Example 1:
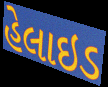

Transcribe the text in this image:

હેલાઇડ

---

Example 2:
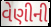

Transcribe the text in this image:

વેણીની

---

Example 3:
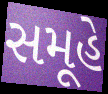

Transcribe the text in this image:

સમૂહે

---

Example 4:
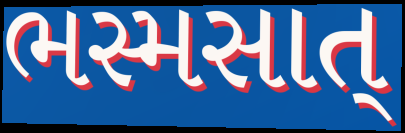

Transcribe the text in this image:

ભસ્મસાત્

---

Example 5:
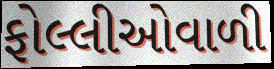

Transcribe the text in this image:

ફોલ્લીઓવાળી